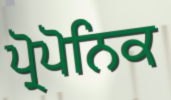
ਪ੍ਰੋਪੋਨਿਕ